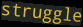
struggle